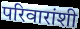
परिवारांशी